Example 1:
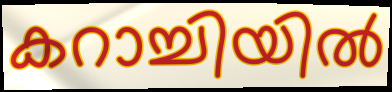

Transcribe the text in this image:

കറാച്ചിയിൽ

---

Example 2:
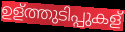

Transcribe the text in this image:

ഉള്ത്തുടിപ്പുകള്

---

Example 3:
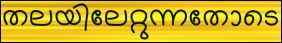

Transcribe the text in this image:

തലയിലേറ്റുന്നതോടെ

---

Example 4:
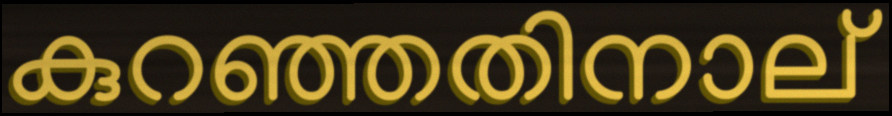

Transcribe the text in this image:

കുറഞ്ഞതിനാല്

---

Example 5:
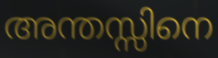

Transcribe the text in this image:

അന്തസ്സിനെ